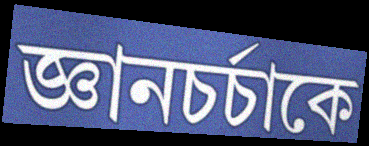
জ্ঞানচর্চাকে